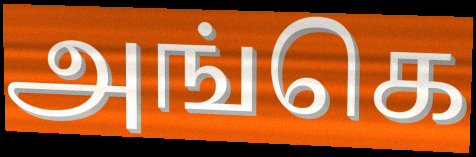
அங்கெ